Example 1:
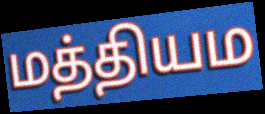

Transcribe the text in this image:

மத்தியம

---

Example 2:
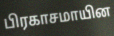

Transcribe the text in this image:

பிரகாசமாயின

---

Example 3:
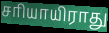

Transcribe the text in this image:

சரியாயிராது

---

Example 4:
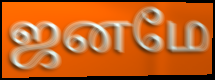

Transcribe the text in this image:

ஜனமே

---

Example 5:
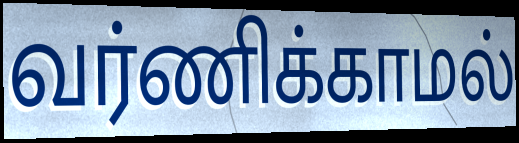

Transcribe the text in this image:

வர்ணிக்காமல்